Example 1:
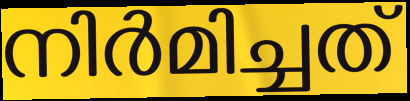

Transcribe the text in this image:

നിർമിച്ചത്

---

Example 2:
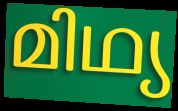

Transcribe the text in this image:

മിഥ്യ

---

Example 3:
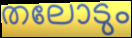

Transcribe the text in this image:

തലോടും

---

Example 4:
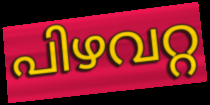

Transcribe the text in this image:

പിഴവറ്റ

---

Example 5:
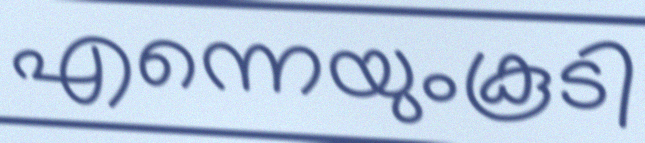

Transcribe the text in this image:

എന്നെയുംകൂടി